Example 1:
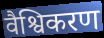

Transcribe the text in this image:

वैश्विकरण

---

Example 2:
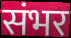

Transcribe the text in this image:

संभर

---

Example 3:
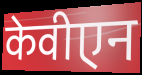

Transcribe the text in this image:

केवीएन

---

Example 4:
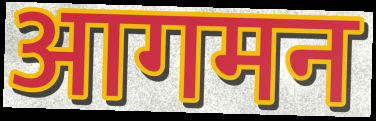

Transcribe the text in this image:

आगमन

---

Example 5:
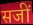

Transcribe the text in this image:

सजीं